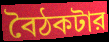
বৈঠকটার